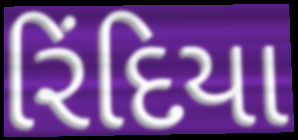
રિંદિયા